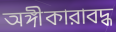
অঙ্গীকারাবদ্ধ